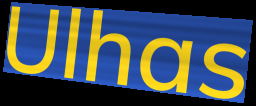
Ulhas